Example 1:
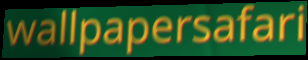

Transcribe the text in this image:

wallpapersafari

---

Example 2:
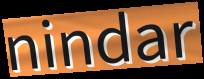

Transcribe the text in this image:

nindar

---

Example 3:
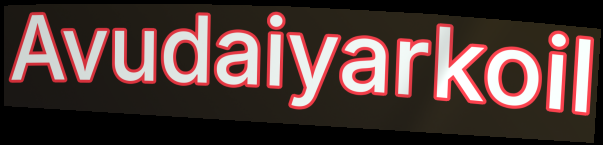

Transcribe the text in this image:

Avudaiyarkoil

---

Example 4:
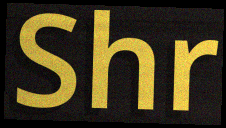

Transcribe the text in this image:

Shr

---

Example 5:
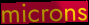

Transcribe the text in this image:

microns